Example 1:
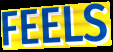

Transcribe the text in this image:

FEELS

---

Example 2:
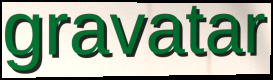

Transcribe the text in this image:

gravatar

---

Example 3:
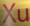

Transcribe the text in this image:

Xu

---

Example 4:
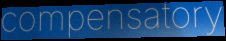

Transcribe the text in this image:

compensatory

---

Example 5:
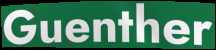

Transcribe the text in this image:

Guenther